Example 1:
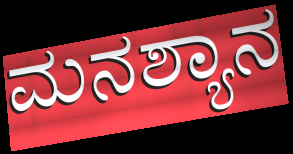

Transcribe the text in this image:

ಮನಶ್ಯಾನ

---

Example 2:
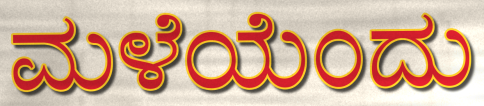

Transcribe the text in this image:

ಮಳೆಯೆಂದು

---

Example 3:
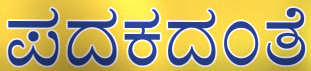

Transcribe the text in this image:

ಪದಕದಂತೆ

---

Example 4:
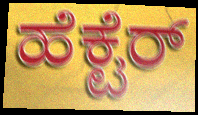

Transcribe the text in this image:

ಹೆಕ್ಟೆರ್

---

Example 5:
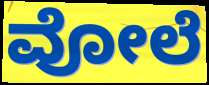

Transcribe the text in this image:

ವೋಲೆ